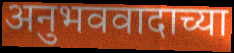
अनुभववादाच्या